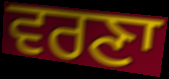
ਵਰਣਾ